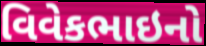
વિવેકભાઇનો